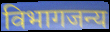
विभागजन्य